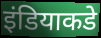
इंडियाकडे